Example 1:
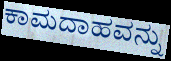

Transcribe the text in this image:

ಕಾಮದಾಹವನ್ನು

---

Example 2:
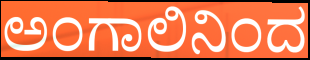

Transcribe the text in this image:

ಅಂಗಾಲಿನಿಂದ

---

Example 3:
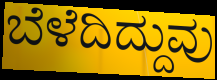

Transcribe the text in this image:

ಬೆಳೆದಿದ್ದುವು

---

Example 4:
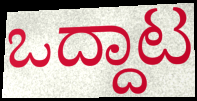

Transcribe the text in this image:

ಒದ್ದಾಟ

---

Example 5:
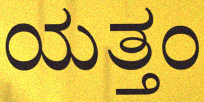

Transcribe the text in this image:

ಯತ್ತಂ